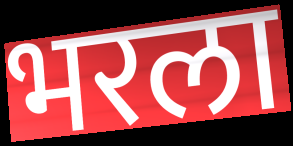
भरला